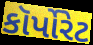
કૉર્પોરેટ